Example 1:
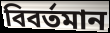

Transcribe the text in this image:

বিবর্তমান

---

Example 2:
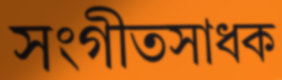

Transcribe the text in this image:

সংগীতসাধক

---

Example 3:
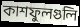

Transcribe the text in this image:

কাশফুলগুলি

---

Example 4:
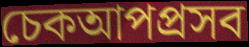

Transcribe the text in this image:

চেকআপপ্রসব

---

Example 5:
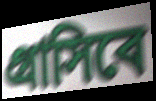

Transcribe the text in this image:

গ্রাসিবে